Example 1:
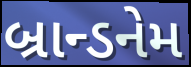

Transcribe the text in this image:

બ્રાન્ડનેમ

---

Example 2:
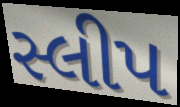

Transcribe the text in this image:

સ્લીપ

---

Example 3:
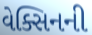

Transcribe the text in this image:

વેક્સિનની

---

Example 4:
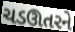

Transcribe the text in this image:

ચડઊતરને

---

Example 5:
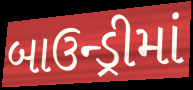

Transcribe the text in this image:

બાઉન્ડ્રીમાં